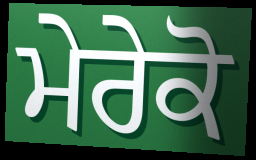
ਮੇਰੇਕੋ